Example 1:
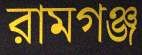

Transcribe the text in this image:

রামগঞ্জ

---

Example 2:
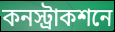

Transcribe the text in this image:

কনস্ট্রাকশনে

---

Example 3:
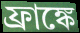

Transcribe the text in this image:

ফ্রাঙ্কে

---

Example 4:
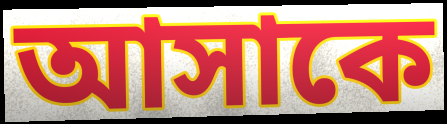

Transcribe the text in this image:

আসাকে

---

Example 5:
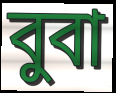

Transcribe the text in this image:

বুবা